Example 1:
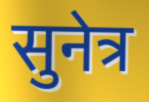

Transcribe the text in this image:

सुनेत्र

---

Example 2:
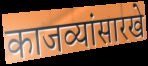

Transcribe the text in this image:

काजव्यांसारखे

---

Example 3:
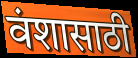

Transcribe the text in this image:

वंशासाठी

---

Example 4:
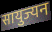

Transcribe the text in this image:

सायुज्यन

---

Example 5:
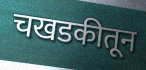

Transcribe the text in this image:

चखडकीतून